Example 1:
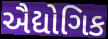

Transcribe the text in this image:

ઐદ્યોગિક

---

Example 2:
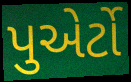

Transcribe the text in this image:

પુએર્ટો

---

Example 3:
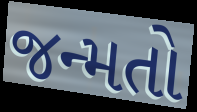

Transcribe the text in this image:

જન્મતો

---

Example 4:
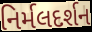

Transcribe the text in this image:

નિર્મલદર્શન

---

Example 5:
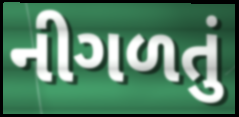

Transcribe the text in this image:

નીગળતું